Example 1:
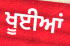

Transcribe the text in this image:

ਖੂਈਆਂ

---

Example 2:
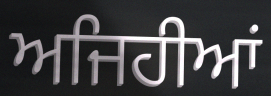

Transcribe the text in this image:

ਅਜਿਹੀਆਂ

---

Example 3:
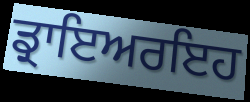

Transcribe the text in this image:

ਡ੍ਰਾਇਅਰਇਹ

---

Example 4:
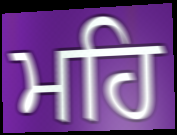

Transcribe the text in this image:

ਮਹਿ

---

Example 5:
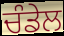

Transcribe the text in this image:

ਚੰਡੇਲ